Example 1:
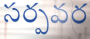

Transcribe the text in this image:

సర్పవర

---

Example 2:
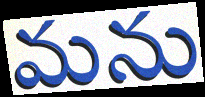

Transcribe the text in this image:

మను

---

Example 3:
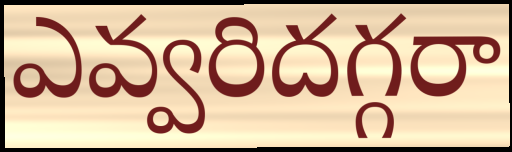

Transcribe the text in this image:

ఎవ్వరిదగ్గరా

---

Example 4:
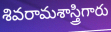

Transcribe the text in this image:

శివరామశాస్త్రిగారు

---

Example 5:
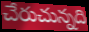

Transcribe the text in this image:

చేరుచున్నది